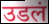
उडलं